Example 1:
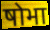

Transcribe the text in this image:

षोभा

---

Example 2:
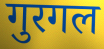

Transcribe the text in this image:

गुरगल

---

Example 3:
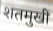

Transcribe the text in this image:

शतमुखी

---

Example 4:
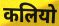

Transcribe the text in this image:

कलियो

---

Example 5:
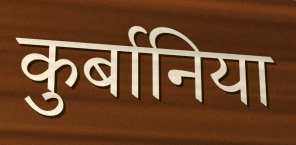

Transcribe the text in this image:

कुर्बानिया